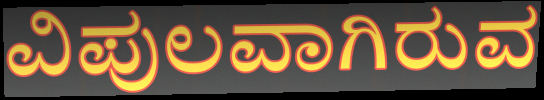
ವಿಪುಲವಾಗಿರುವ